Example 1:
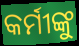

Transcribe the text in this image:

କର୍ମୀଙ୍କୁ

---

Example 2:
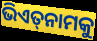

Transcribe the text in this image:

ଭିଏତ୍‌ନାମକୁ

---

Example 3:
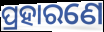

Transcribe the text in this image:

ପ୍ରହାରଣେ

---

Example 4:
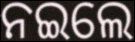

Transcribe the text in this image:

ନଇଲେ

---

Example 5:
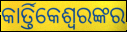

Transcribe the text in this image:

କାର୍ତ୍ତିକେଶ୍ୱରଙ୍କର